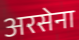
अरसेना